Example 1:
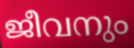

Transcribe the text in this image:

ജീവനും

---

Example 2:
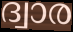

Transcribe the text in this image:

ദ്വാര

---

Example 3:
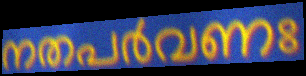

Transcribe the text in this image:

നതപർവണഃ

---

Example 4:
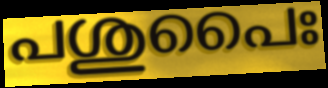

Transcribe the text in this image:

പശുപൈഃ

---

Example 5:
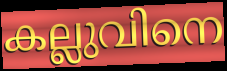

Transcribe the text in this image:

കല്ലുവിനെ